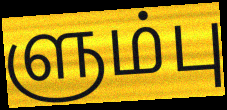
ளும்பு